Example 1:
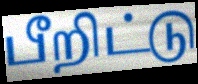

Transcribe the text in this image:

பீறிட்டு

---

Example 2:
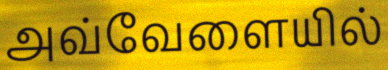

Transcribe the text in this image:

அவ்வேளையில்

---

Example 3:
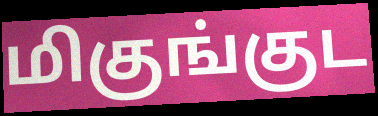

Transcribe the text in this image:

மிகுங்குட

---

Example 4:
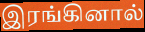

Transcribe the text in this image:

இரங்கினால்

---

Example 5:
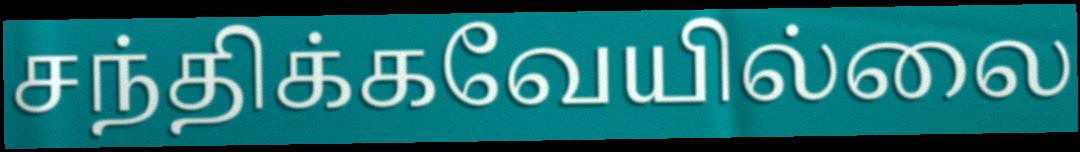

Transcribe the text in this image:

சந்திக்கவேயில்லை